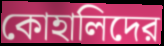
কোহালিদের